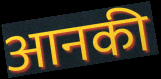
आनकी